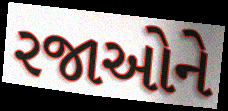
રજાઓને